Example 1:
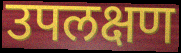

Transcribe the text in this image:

उपलक्षण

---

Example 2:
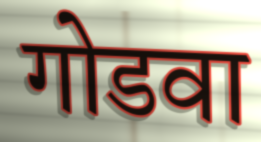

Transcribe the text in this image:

गोडवा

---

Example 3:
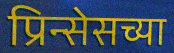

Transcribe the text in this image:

प्रिन्सेसच्या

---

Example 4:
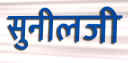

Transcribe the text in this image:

सुनीलजी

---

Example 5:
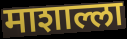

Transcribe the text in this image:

माशाल्ला